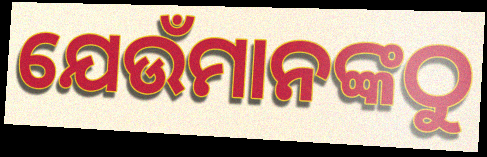
ଯେଉଁମାନଙ୍କଠୁ